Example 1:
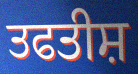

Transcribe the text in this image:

ਤਫਤੀਸ਼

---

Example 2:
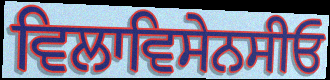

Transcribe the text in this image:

ਵਿਲਾਵਿਸੇਨਸੀਓ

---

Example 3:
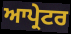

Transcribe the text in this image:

ਆਪ੍ਰੇਟਰ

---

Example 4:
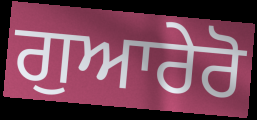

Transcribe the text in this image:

ਗੁਆਰੇਰੋ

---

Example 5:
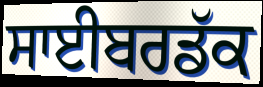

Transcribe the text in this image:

ਸਾਈਬਰਡੱਕ